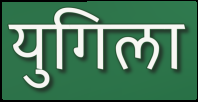
युगिला